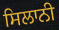
ਸਿਲਾਨੀ